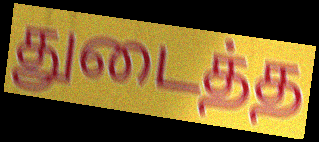
துடைத்த